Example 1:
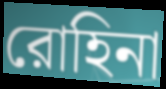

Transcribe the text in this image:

রোহিনা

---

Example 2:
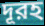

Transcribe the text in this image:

দূরহ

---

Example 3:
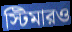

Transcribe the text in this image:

স্টিমারও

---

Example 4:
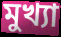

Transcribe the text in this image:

মুখ্যা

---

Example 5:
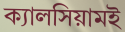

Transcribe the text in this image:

ক্যালসিয়ামই